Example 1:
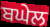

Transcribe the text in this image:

ਬਘੇਲ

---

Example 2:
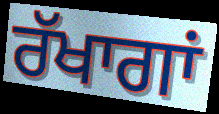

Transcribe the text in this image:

ਰੱਖਾਗਾਂ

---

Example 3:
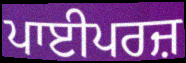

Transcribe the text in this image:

ਪਾਈਪਰਜ਼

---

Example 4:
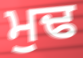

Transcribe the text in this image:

ਮੁਢ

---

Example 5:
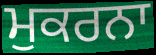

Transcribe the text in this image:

ਮੁਕਰਨਾ